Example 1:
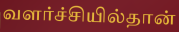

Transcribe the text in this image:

வளர்ச்சியில்தான்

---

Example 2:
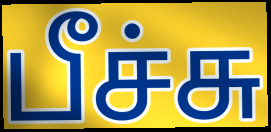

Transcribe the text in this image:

பீச்சு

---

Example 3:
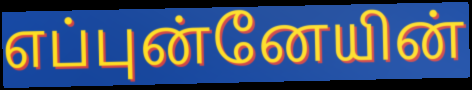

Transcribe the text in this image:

எப்புன்னேயின்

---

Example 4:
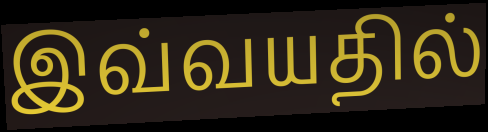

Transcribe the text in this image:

இவ்வயதில்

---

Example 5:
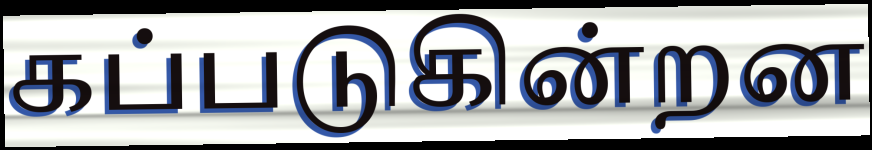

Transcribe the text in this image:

கப்படுகின்றன